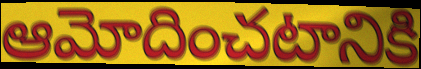
ఆమోదించటానికి